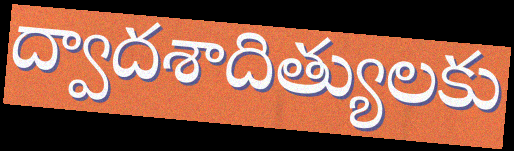
ద్వాదశాదిత్యులకు